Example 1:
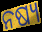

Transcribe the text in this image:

ନଷ୍ଯ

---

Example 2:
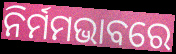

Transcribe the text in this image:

ନିର୍ମମଭାବରେ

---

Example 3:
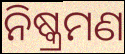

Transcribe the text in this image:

ନିଷ୍କ୍ରମଣ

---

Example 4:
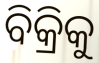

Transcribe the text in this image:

ବିକ୍ରିକୁ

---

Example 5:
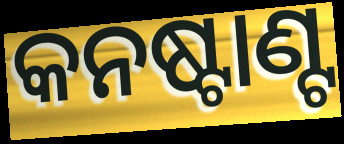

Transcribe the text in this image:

କନଷ୍ଟାଣ୍ଟ